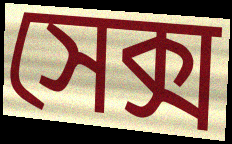
সেক্স